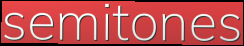
semitones